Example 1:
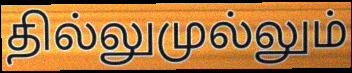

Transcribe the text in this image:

தில்லுமுல்லும்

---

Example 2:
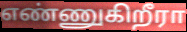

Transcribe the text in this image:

எண்ணுகிறீரா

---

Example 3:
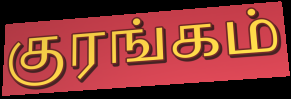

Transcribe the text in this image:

குரங்கம்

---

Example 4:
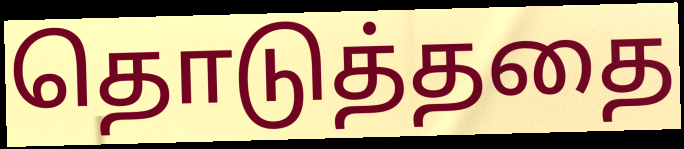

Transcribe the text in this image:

தொடுத்ததை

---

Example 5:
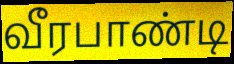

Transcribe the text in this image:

வீரபாண்டி